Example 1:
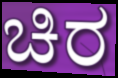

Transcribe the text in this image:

ಚಿರ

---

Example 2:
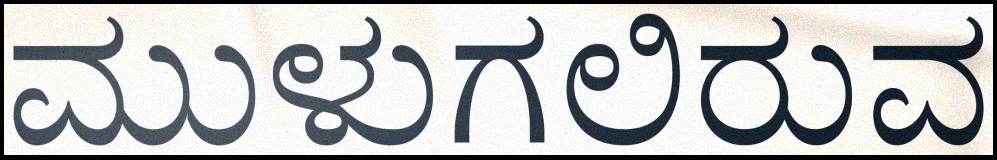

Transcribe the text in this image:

ಮುಳುಗಲಿರುವ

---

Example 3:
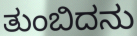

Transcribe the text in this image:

ತುಂಬಿದನು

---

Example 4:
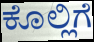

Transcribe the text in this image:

ಕೊಲ್ಲಿಗೆ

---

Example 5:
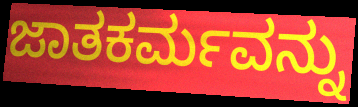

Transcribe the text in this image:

ಜಾತಕರ್ಮವನ್ನು